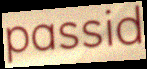
passid